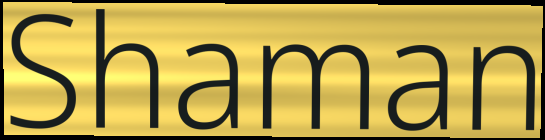
Shaman